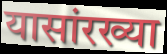
यासांरख्या